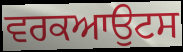
ਵਰਕਆਉਟਸ